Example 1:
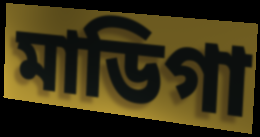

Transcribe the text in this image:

মাডিগা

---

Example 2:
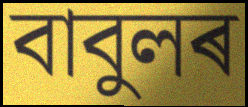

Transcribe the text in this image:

বাবুলৰ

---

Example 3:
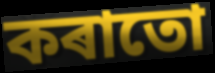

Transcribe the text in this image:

কৰাতো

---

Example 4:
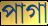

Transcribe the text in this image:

পাগা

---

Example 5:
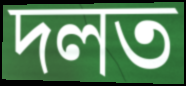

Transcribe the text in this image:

দলত